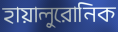
হায়ালুরোনিক